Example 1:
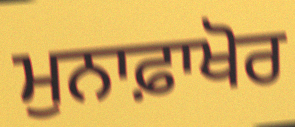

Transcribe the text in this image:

ਮੁਨਾਫ਼ਾਖੋਰ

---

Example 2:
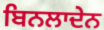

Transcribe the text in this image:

ਬਿਨਲਾਦੇਨ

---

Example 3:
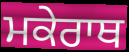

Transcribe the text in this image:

ਮਕੇਰਾਥ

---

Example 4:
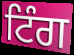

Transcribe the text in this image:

ਟਿੰਗ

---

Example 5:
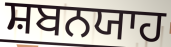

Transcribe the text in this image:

ਸ਼ਬਨਯਾਹ